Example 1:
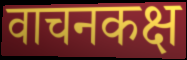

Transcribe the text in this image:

वाचनकक्ष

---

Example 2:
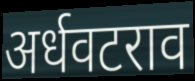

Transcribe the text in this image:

अर्धवटराव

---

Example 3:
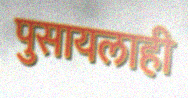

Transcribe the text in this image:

पुसायलाही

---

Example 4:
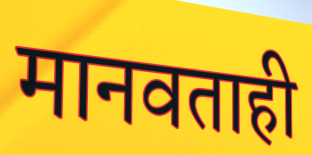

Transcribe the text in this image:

मानवताही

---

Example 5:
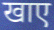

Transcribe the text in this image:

खाए